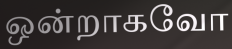
ஒன்றாகவோ